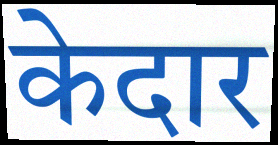
केदार